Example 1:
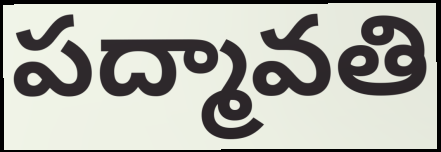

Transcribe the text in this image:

పద్మావతి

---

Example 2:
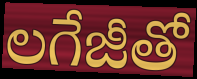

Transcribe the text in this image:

లగేజీతో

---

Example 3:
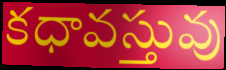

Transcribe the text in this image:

కధావస్తువు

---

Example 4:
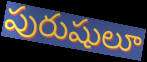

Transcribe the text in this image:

పురుషులూ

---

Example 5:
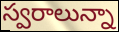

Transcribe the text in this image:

స్వరాలున్నా